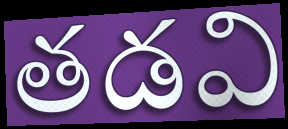
తడవి